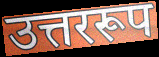
उत्तररूप